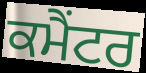
ਕਮੈਂਟਰ